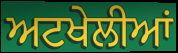
ਅਟਖੇਲੀਆਂ